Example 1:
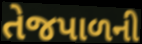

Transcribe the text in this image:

તેજપાળની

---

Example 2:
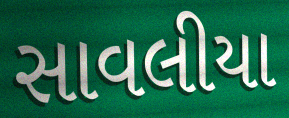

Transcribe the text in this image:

સાવલીયા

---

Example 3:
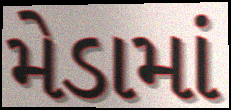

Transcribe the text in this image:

મેડામાં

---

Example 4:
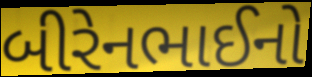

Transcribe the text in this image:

બીરેનભાઈનો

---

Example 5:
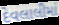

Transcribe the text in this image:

દેવલાલીમાં